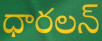
ధారలన్